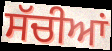
ਸੱਚੀਆਂ